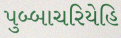
પુબ્બાચરિયેહિ